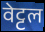
वेट्टल